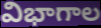
విభాగాల